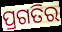
ପ୍ରଗତିର